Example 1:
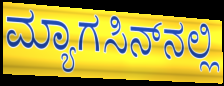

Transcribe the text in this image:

ಮ್ಯಾಗಸಿನ್‍ನಲ್ಲಿ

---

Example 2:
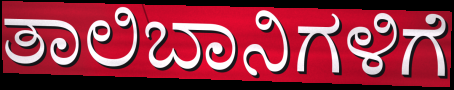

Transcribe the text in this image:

ತಾಲಿಬಾನಿಗಳಿಗೆ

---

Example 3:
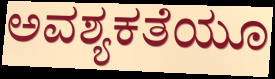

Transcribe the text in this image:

ಅವಶ್ಯಕತೆಯೂ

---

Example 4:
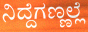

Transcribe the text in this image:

ನಿದ್ದೆಗಣ್ಣಲ್ಲೆ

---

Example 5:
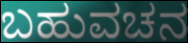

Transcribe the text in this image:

ಬಹುವಚನ